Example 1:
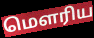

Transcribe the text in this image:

மௌரிய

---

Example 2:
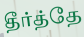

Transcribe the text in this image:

தீர்த்தே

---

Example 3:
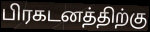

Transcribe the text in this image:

பிரகடனத்திற்கு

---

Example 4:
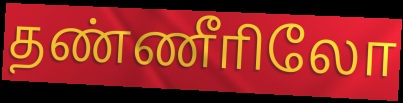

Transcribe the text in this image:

தண்ணீரிலோ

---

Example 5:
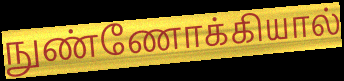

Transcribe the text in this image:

நுண்ணோக்கியால்